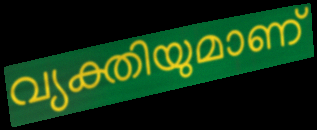
വ്യക്തിയുമാണ്